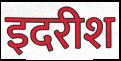
इदरीश